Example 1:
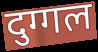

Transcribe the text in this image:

दुग्गल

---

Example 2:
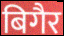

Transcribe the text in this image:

बिगैर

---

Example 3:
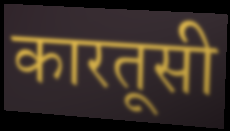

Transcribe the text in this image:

कारतूसी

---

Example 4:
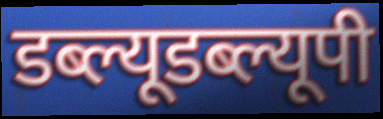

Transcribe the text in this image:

डब्ल्यूडब्ल्यूपी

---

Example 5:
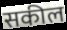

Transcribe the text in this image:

सकील